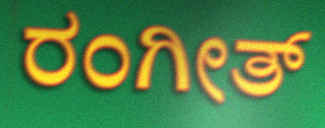
ರಂಗೀತ್